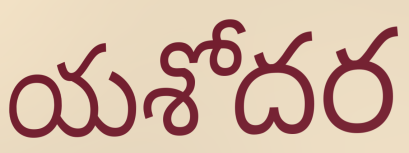
యశోదర